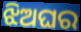
ଝିଅଘର